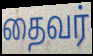
தைவர்